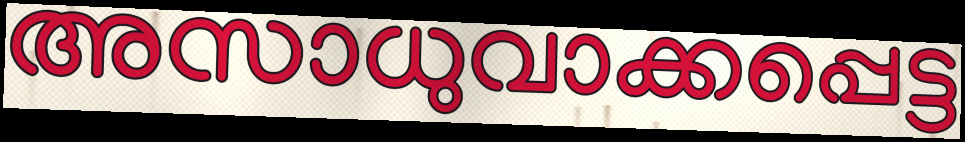
അസാധുവാക്കപ്പെട്ട